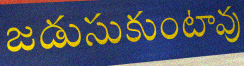
జడుసుకుంటావు